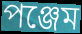
পঞ্জেম